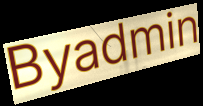
Byadmin